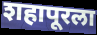
शहापूरला